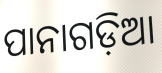
ପାନାଗଡ଼ିଆ